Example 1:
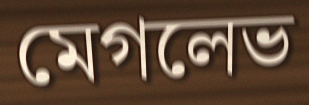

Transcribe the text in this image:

মেগলেভ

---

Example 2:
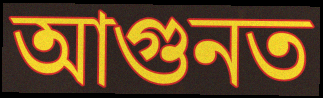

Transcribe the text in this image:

আগুনত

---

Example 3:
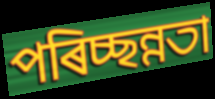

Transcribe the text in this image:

পৰিচ্ছন্নতা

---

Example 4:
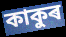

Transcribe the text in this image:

কাকুৰ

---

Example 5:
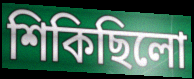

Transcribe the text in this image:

শিকিছিলো